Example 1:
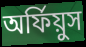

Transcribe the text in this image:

অর্ফিয়ুস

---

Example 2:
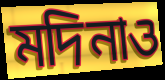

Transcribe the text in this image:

মদিনাও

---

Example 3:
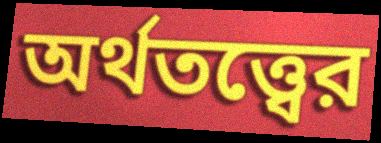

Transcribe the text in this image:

অর্থতত্ত্বের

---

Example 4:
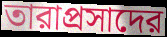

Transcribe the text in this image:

তারাপ্রসাদের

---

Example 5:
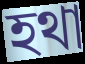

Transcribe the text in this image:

হথা